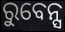
ରୁବେନ୍ସ